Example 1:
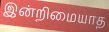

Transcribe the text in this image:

இன்றிமையாத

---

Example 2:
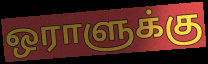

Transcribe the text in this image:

ஒராளுக்கு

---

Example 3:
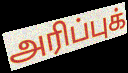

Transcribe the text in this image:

அரிப்புக்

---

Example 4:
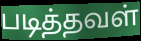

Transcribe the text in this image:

படித்தவள்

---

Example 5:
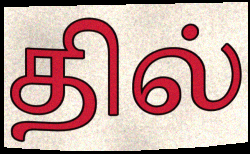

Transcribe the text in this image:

தில்